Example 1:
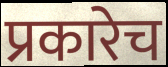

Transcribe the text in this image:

प्रकारेच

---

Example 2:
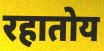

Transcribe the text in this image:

रहातोय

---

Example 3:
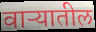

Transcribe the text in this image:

वाऱ्यातील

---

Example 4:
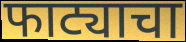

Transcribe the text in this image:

फाट्याचा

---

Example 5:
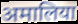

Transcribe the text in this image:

अमालिया